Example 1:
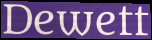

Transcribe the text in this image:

Dewett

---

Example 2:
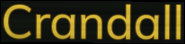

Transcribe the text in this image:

Crandall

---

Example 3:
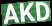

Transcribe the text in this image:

AKD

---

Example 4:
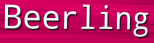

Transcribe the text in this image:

Beerling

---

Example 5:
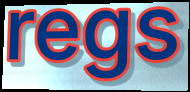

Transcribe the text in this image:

regs